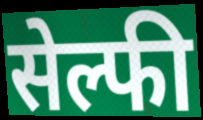
सेल्फी